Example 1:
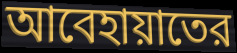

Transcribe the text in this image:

আবেহায়াতের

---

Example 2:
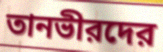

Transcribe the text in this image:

তানভীরদের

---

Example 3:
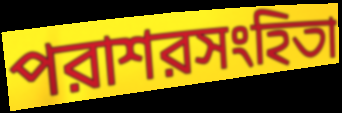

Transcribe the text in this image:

পরাশরসংহিতা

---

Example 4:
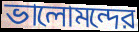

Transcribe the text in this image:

ভালোমন্দের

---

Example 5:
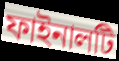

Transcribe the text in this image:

ফাইনালটি